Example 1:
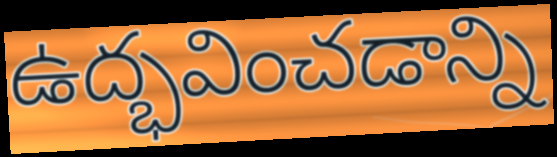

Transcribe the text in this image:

ఉద్భవించడాన్ని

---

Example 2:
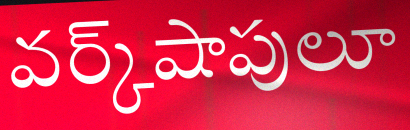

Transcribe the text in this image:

వర్క్‌షాపులూ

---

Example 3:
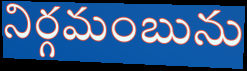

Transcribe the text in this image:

నిర్గమంబును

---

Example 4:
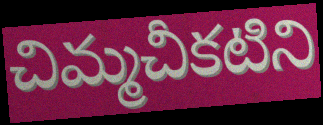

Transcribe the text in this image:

చిమ్మచీకటిని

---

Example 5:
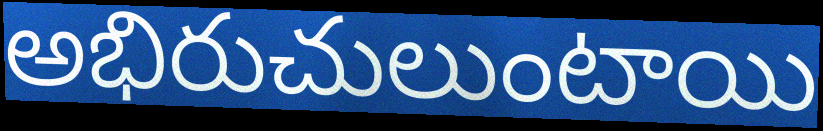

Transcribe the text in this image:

అభిరుచులుంటాయి